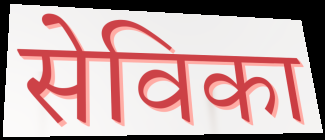
सेविका